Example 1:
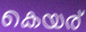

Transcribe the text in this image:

കെയര്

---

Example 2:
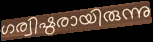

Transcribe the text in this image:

ഗര്വിഷ്ഠരായിരുന്നു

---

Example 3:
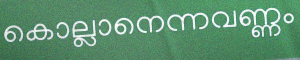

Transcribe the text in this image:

കൊല്ലാനെന്നവണ്ണം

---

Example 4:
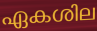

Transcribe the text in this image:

ഏകശില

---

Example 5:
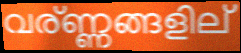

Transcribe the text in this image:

വര്ണ്ണങ്ങളില്